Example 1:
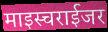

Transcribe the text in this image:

माइस्चराईजर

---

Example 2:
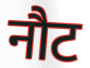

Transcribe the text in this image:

नौट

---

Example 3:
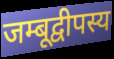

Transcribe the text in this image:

जम्बूद्वीपस्य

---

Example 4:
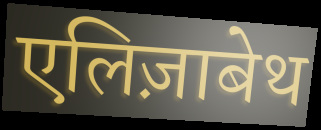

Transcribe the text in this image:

एलिज़ाबेथ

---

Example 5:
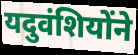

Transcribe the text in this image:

यदुवंशियोंने